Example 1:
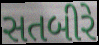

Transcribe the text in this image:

સતબીરે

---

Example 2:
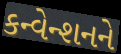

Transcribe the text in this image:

કન્વેન્શનને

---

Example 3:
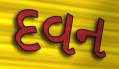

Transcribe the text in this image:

દવન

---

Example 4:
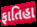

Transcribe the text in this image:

ફાતિહા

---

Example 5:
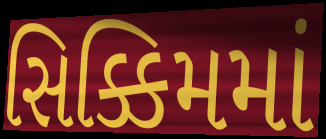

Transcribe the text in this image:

સિક્કિમમાં